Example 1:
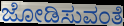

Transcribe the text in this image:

ಜೋಡಿಸುವಂತೆ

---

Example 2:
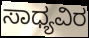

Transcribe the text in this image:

ಸಾಧ್ಯವಿರ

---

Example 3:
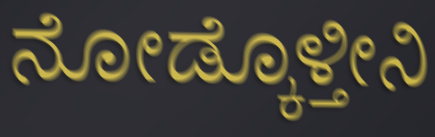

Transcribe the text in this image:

ನೋಡ್ಕೊಳ್ತೀನಿ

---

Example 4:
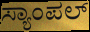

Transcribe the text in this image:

ಸ್ಯಾಂಪಲ್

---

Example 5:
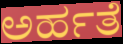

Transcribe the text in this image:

ಅರ್ಹತೆ